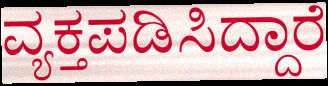
ವ್ಯಕ್ತಪಡಿಸಿದ್ದಾರೆ